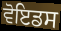
ਵੋਇਡਸ